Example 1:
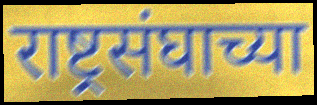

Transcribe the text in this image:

राष्ट्रसंघाच्या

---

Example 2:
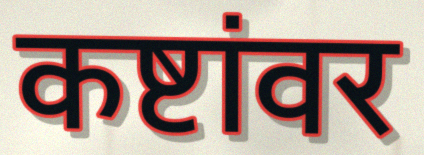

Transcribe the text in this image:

कष्टांवर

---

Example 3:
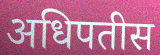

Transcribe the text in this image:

अधिपतीस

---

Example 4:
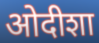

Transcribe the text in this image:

ओदीशा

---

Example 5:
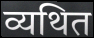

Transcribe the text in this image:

व्यथित